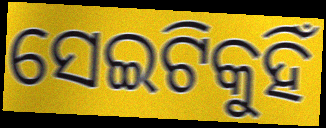
ସେଇଟିକୁହିଁ